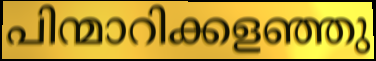
പിന്മാറിക്കളഞ്ഞു